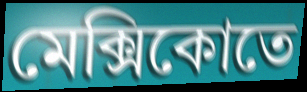
মেক্সিকোতে